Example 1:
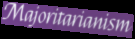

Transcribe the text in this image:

Majoritarianism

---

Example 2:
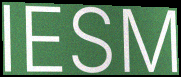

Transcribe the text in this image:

IESM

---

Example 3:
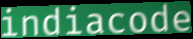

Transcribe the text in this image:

indiacode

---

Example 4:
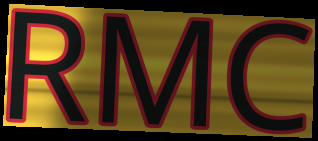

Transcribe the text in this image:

RMC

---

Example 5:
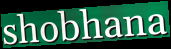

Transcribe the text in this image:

shobhana